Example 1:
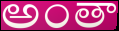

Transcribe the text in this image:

అంతా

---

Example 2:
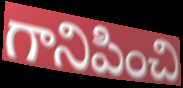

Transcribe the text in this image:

గానిపించి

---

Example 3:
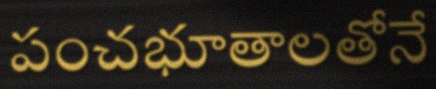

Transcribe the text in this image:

పంచభూతాలతోనే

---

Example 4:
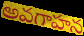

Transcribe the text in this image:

అవగాహన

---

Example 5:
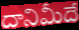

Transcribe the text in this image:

దానిమీదే